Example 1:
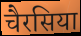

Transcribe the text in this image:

चैरसिया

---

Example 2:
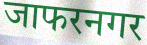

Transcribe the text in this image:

जाफरनगर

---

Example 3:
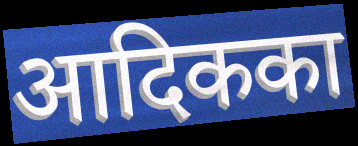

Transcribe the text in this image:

आदिकका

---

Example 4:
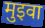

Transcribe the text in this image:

मुइवा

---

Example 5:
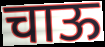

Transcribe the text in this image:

चाऊ